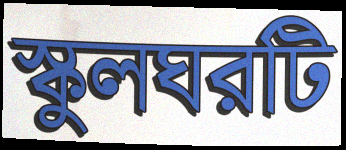
স্কুলঘরটি